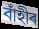
বাঁহীৰ